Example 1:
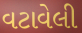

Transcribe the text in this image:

વટાવેલી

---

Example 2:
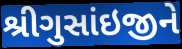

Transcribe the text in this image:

શ્રીગુસાંઇજીને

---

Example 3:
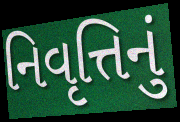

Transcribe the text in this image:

નિવૃત્તિનું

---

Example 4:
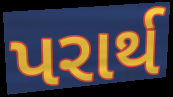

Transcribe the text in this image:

પરાર્થ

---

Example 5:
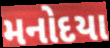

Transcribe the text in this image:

મનોદયા